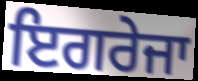
ਇਗਰੇਜਾ